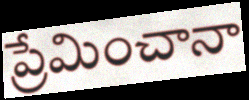
ప్రేమించానా